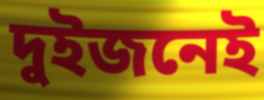
দুইজনেই